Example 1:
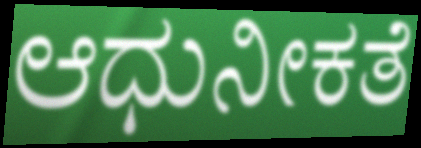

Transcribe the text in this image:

ಆಧುನೀಕತೆ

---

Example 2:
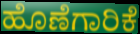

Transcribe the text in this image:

ಹೊಣೆಗಾರಿಕೆ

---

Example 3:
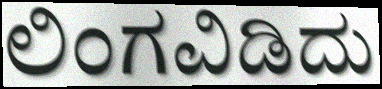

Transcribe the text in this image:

ಲಿಂಗವಿಡಿದು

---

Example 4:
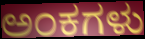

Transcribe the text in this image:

ಅಂಕಗಳು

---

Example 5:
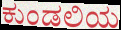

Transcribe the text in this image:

ಕುಂಡಲಿಯ